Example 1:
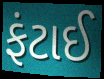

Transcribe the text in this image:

ફંટાઈ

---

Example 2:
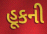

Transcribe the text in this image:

હૂકની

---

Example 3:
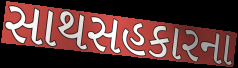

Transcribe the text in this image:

સાથસહકારના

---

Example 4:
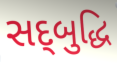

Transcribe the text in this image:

સદ્‌બુદ્ધિ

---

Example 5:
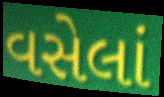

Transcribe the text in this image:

વસેલાં